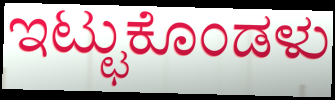
ಇಟ್ಟುಕೊಂಡಳು